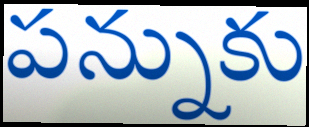
పన్నుకు